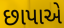
છાપાએ